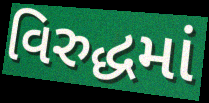
વિરુદ્ધમાં